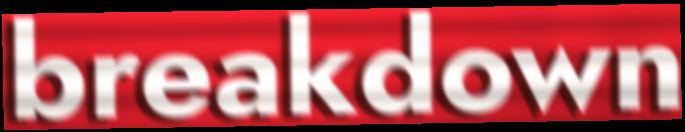
breakdown